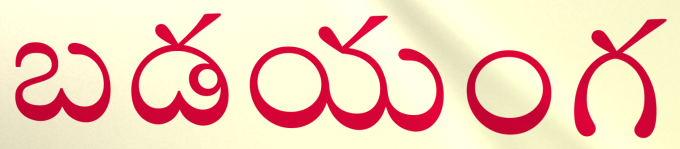
బడయంగ